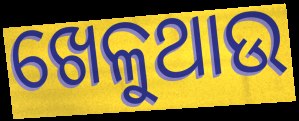
ଖେଳୁଥାଉ